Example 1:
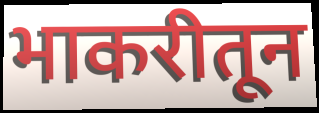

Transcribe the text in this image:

भाकरीतून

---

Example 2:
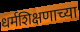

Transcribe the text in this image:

धर्मशिक्षणाच्या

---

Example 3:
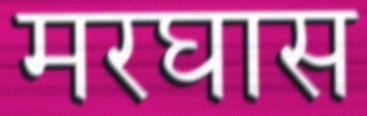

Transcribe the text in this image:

मरघास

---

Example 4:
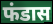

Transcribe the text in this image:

फंडास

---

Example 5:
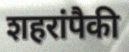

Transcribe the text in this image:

शहरांपैकी